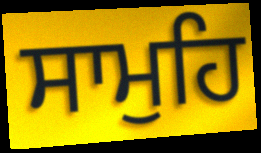
ਸਾਮੁਹਿ